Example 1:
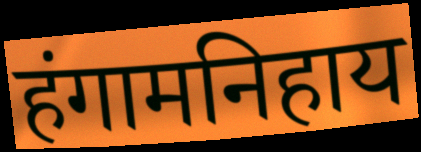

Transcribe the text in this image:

हंगामनिहाय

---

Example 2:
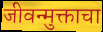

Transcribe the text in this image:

जीवन्मुक्ताचा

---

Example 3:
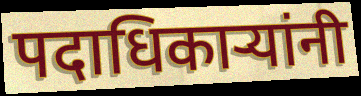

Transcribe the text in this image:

पदाधिकार्‍यांनी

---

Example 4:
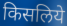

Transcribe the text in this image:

किसलिये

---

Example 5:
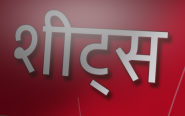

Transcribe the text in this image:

शीट्स